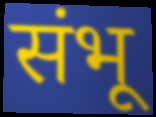
संभू